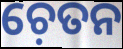
ଚ଼େତନ